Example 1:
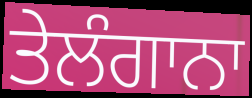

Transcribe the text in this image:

ਤੇਲੰਗਾਨਾ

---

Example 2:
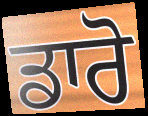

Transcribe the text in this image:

ਡਾਰੋ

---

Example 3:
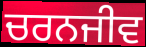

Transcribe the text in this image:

ਚਰਨਜੀਵ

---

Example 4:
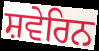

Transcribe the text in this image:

ਸ਼ਵੇਰਿਨ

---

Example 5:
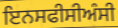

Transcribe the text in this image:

ਇਨਸਫੀਸੀਅੰਸੀ